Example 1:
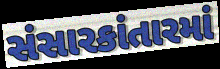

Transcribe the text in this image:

સંસારકાંતારમાં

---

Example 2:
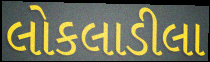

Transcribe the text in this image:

લોકલાડીલા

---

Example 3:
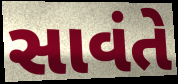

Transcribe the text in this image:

સાવંતે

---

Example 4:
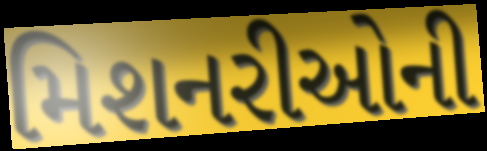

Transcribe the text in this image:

મિશનરીઓની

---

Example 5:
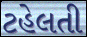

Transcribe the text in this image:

ટહેલતી